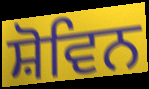
ਸ਼ੋਵਿਨ